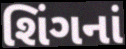
શિંગનાં